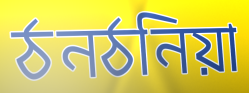
ঠনঠনিয়া